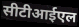
सीटीआईएल